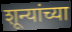
शून्यांच्या